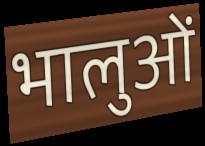
भालुओं